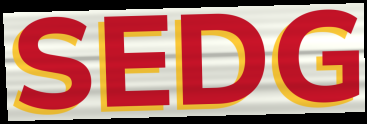
SEDG